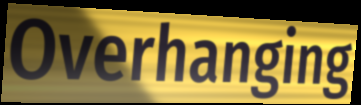
Overhanging